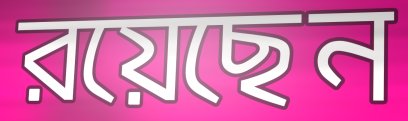
রয়েছেন